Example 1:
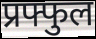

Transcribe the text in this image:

प्रफ्फुल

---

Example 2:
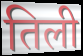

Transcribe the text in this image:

तिली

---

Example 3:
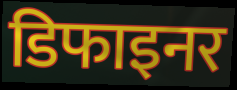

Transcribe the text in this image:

डिफाइनर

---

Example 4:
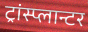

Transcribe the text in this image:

ट्रांस्प्लान्टर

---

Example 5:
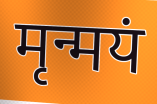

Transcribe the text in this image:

मृन्मयं